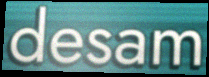
desam